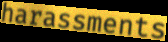
harassments